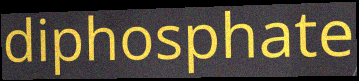
diphosphate